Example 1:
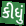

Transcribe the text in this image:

કીધું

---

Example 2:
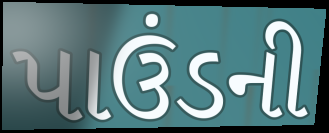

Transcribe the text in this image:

પાઉંડની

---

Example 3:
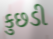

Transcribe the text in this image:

કુછડી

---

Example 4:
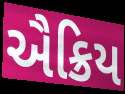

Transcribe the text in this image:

ઐક્રિય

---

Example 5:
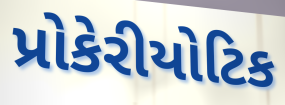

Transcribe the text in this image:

પ્રોકેરીયોટિક